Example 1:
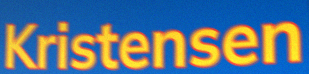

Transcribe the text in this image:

Kristensen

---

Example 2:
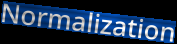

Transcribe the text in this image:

Normalization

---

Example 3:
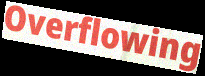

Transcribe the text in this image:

Overflowing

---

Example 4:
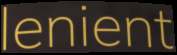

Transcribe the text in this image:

lenient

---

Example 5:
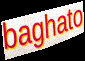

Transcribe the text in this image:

baghato